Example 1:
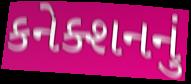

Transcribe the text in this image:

કનેક્શનનું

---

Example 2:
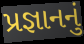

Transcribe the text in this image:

પ્રજ્ઞાનનું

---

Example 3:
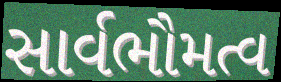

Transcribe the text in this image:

સાર્વભૌમત્વ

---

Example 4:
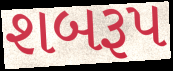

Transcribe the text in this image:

શબરૂપ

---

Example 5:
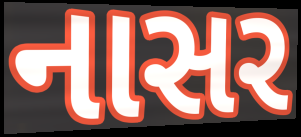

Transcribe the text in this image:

નાસર